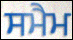
ਸਮੈਮ